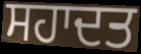
ਸਹਾਦਤ